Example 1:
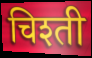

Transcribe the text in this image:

चिश्ती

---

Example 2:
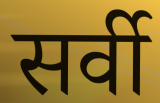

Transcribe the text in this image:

सर्वी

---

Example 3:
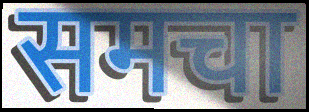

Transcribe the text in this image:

समचा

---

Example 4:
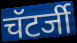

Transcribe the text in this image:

चॅटर्जी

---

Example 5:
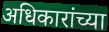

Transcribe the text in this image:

अधिकारांच्या